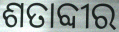
ଶତାବ୍ଦୀର